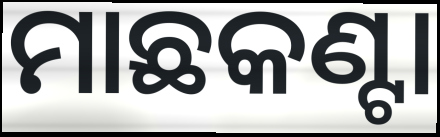
ମାଛକଣ୍ଟା